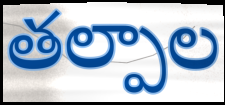
తల్పాల